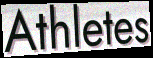
Athletes